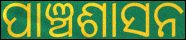
ପାଞ୍ଚଶାସନ